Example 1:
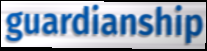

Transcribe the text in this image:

guardianship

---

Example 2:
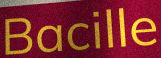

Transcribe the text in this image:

Bacille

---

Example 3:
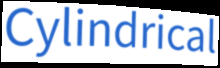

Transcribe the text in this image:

Cylindrical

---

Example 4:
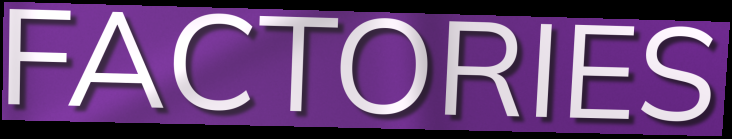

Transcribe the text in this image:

FACTORIES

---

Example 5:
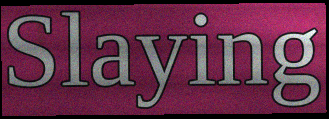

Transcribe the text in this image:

Slaying